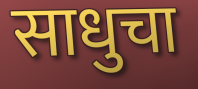
साधुचा